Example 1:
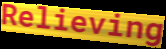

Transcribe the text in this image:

Relieving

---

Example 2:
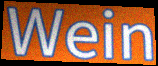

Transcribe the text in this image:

Wein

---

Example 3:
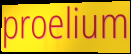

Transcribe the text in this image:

proelium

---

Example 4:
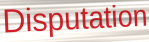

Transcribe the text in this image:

Disputation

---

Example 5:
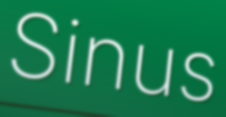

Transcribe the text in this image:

Sinus